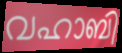
വഹാബി